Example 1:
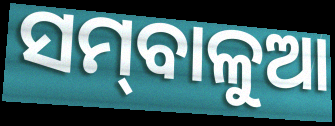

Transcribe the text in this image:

ସମ୍‌ବାଳୁଆ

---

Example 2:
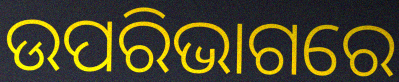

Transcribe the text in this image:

ଉପରିଭାଗରେ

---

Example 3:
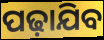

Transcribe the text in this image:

ପଢ଼ାଯିବ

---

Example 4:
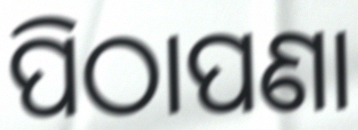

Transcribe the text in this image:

ପିଠାପଣା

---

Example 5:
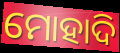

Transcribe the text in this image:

ମୋହାଦି